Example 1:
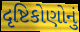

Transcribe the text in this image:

દૃષ્ટિકોણોનું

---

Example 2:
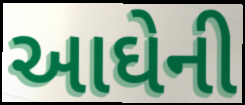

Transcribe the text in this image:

આઘેની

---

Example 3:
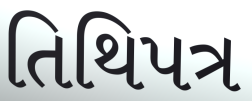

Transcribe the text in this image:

તિથિપત્ર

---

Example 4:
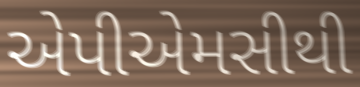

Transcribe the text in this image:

એપીએમસીથી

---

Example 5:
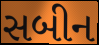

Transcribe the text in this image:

સબીન